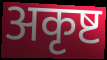
अकृष्ट